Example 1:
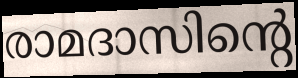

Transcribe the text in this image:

രാമദാസിന്റെ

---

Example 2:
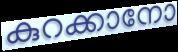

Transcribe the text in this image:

കുറക്കാനോ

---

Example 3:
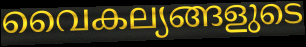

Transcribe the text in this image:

വൈകല്യങ്ങളുടെ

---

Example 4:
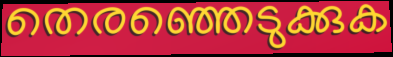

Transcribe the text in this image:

തെരഞ്ഞെടുക്കുക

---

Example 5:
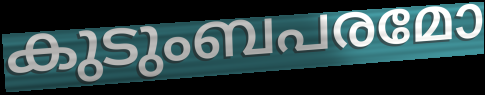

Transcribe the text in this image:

കുടുംബപരമോ